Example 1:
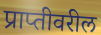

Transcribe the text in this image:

प्राप्तीवरील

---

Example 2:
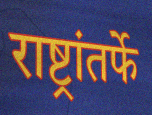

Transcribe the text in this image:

राष्ट्रांतर्फे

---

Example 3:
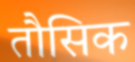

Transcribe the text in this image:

तौसिक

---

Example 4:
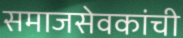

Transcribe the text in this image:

समाजसेवकांची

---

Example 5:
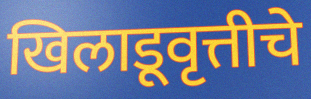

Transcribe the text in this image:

खिलाडूवृत्तीचे